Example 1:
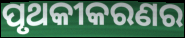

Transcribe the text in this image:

ପୃଥକୀକରଣର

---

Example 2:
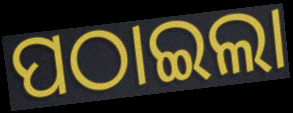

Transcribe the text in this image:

ପଠାଇଲା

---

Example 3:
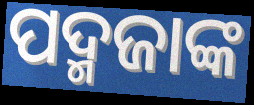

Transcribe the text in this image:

ପଦ୍ମଜାଙ୍କ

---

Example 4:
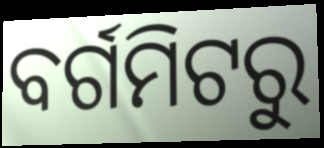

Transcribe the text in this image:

ବର୍ଗମିଟରୁ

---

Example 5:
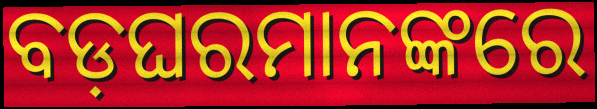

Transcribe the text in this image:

ବଡ଼ଘରମାନଙ୍କରେ